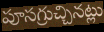
పూసగ్రుచ్చినట్లు